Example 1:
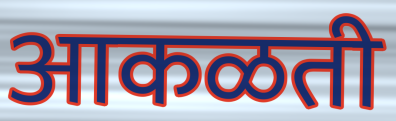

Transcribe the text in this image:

आकळती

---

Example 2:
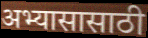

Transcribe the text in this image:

अभ्यासासाठी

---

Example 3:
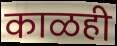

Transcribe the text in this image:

काळही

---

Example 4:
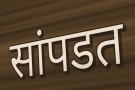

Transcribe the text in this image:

सांपडत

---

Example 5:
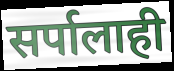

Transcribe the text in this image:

सर्पालाही